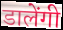
डालेंगी